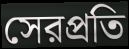
সেরপ্রতি